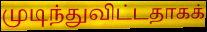
முடிந்துவிட்டதாகக்